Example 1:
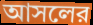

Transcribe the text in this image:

আসলের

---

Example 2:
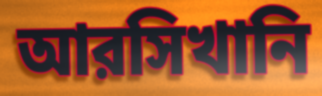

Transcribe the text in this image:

আরসিখানি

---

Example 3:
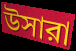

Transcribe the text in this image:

উসারা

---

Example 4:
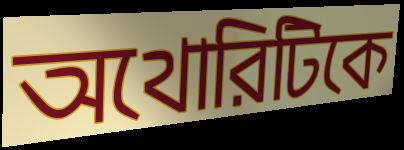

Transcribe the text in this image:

অথোরিটিকে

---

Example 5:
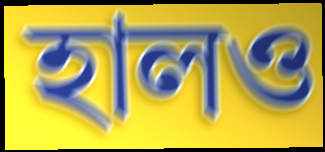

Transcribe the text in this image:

হালও